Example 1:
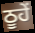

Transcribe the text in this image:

ਠੂਹੇਂ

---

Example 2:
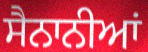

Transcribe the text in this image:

ਸੈਨਾਨੀਆਂ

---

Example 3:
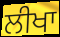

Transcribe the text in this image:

ਲੀਖਾ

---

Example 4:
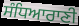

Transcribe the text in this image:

ਸੰਧਿਆਰਾਣੀ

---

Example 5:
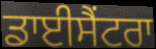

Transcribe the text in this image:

ਡਾਈਸੈਂਟਰਾ